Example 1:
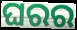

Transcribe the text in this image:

ଘରର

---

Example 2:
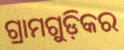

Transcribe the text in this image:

ଗ୍ରାମଗୁଡ଼ିକର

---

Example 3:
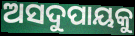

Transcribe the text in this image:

ଅସଦୁପାୟକୁ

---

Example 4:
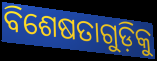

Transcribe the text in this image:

ବିଶେଷତାଗୁଡ଼ିକୁ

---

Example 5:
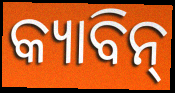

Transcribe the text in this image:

କ୍ୟାବିନ୍